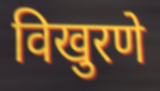
विखुरणे